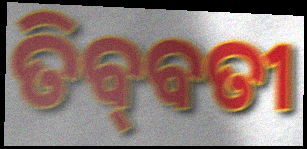
ତିବ୍‌ବତୀ